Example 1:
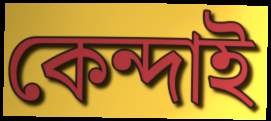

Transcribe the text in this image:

কেন্দাই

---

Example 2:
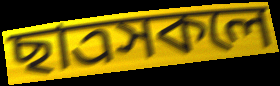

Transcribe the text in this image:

ছাত্ৰসকলে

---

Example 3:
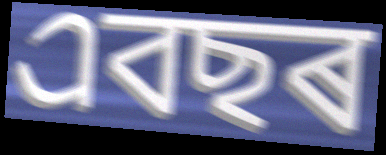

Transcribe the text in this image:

এবছৰ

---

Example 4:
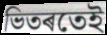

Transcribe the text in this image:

ভিতৰতেই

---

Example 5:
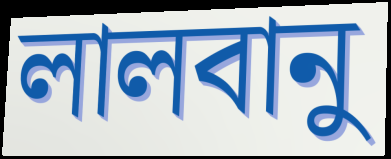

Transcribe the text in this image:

লালবানু